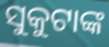
ସୁକୁଟାଙ୍କ